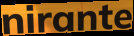
nirante